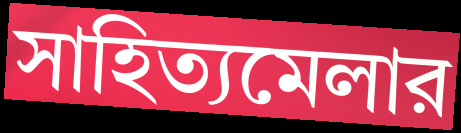
সাহিত্যমেলার